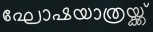
ഘോഷയാത്രയ്ക്ക്